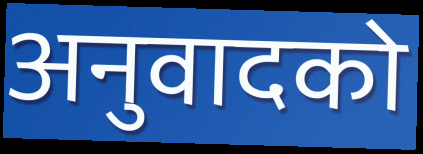
अनुवादको